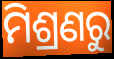
ମିଶ୍ରଣରୁ